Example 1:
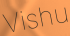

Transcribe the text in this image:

Vishu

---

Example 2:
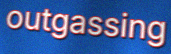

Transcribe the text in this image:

outgassing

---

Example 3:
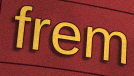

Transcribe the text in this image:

frem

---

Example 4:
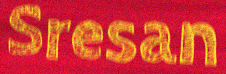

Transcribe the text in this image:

Sresan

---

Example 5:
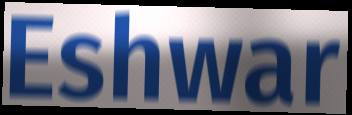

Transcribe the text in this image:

Eshwar